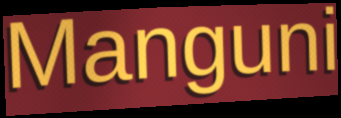
Manguni